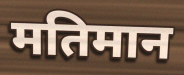
मतिमान